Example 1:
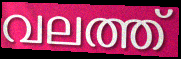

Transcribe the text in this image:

വലത്ത്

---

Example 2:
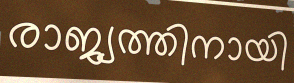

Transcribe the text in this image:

രാജ്യത്തിനായി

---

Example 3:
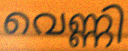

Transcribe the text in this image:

വെണ്ണി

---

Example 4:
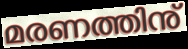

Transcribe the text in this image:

മരണത്തിനു്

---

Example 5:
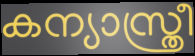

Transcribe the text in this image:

കന്യാസ്ത്രീ